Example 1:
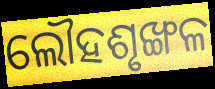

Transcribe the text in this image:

ଲୌହଶୃଙ୍ଖଳ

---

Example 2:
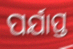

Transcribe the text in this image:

ପର୍ଯାପ୍ତ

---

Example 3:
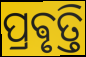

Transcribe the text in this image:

ପ୍ରଵୃତ୍ତି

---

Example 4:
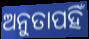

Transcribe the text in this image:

ଅନୁତାପହିଁ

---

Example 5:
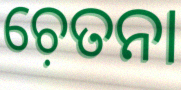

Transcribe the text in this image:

ଚ଼େତନା